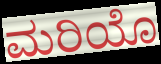
ಮರಿಯೊ